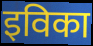
इविका